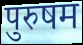
पुरुषम